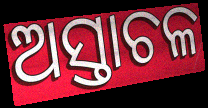
ଅସ୍ତାଚଳ